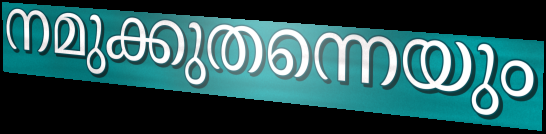
നമുക്കുതന്നെയും